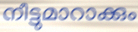
നീട്ടുമാറാക്കും